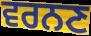
ਵਰਨਣ